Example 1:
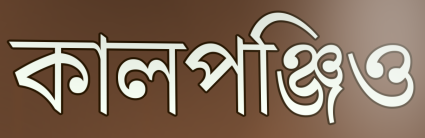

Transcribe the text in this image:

কালপঞ্জিও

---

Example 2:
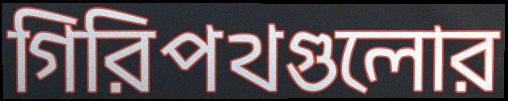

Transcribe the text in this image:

গিরিপথগুলোর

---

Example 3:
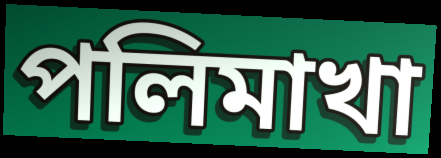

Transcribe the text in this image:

পলিমাখা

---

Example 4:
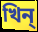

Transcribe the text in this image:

খিন্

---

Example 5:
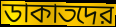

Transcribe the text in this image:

ডাকাতদের